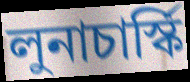
লুনাচার্স্কি